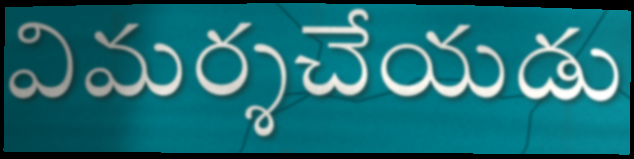
విమర్శచేయడు